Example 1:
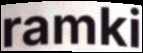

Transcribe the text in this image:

ramki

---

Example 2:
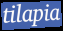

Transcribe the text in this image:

tilapia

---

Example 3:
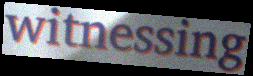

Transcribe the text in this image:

witnessing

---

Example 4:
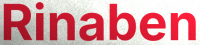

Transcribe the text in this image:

Rinaben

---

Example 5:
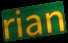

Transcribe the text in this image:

rian